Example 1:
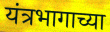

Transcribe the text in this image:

यंत्रभागाच्या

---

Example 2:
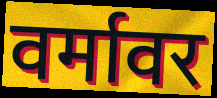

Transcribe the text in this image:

वर्मावर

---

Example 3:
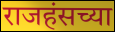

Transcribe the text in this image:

राजहंसच्या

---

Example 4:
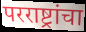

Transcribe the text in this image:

परराष्ट्रांचा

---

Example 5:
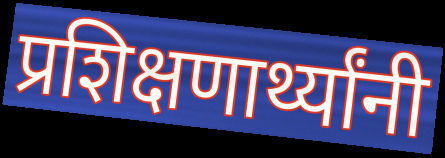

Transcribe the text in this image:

प्रशिक्षणार्थ्यांनी